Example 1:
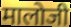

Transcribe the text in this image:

मालोजी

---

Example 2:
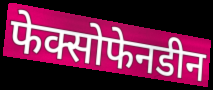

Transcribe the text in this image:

फेक्सोफेनडीन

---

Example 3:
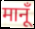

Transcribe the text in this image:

मानूँ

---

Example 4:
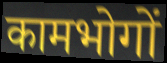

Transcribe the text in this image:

कामभोगों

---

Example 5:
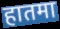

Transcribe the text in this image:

हातमा